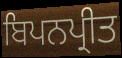
ਬਿਪਨਪ੍ਰੀਤ